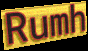
Rumh